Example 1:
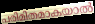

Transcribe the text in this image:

പരിമിതമാകയാൽ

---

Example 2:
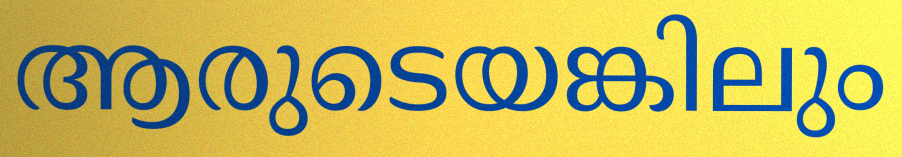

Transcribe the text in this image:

ആരുടെയങ്കിലും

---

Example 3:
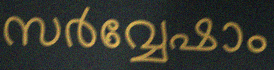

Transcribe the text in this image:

സർവ്വേഷാം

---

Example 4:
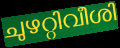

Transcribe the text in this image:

ചുഴറ്റിവീശി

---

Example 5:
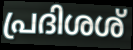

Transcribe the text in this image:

പ്രദിശശ്